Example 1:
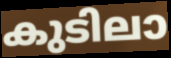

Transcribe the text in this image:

കുടിലാ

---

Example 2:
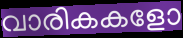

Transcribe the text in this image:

വാരികകളോ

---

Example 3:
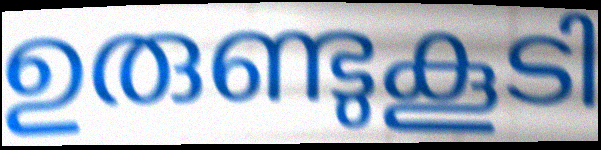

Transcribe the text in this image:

ഉരുണ്ടുകൂടി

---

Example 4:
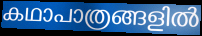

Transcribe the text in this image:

കഥാപാത്രങ്ങളിൽ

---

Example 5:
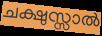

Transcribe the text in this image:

ചക്ഷുസ്സാൽ